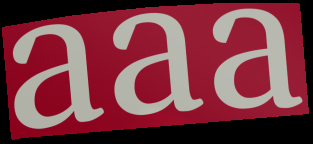
aaa